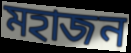
মহাজন